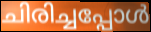
ചിരിച്ചപ്പോൾ